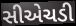
સીએચડી